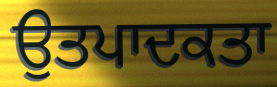
ਉਤਪਾਦਕਤਾ